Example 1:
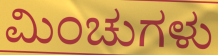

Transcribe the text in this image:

ಮಿಂಚುಗಳು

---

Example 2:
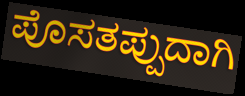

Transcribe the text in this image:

ಪೊಸತಪ್ಪುದಾಗಿ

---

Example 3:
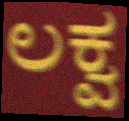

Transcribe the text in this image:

ಲಕ್ವ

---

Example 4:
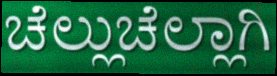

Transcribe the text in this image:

ಚೆಲ್ಲುಚೆಲ್ಲಾಗಿ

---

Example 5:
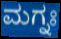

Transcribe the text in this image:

ಮಗ್ನಃ